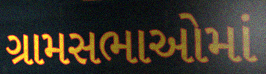
ગ્રામસભાઓમાં